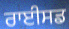
ਰਾਈਸਡ